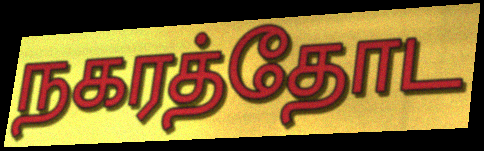
நகரத்தோட